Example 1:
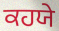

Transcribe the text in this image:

ਕਹਯੇ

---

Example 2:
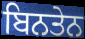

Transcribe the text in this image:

ਬਿਨਤੇਨ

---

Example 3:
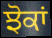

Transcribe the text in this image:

ਝੋਕਾਂ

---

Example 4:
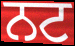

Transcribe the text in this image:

ਨਟ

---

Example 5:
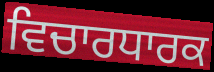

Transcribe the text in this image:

ਵਿਚਾਰਧਾਰਕ